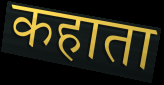
कहाता